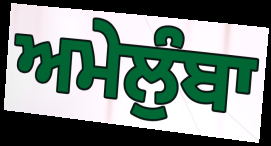
ਅਮੇਲੁੰਬਾ